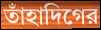
তাঁহাদিগের